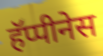
हॅप्पीनेस